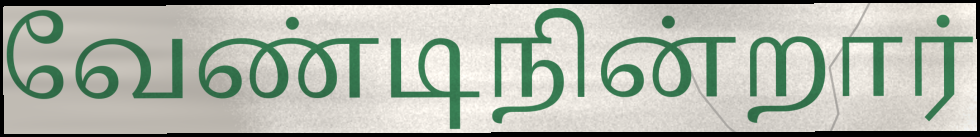
வேண்டிநின்றார்